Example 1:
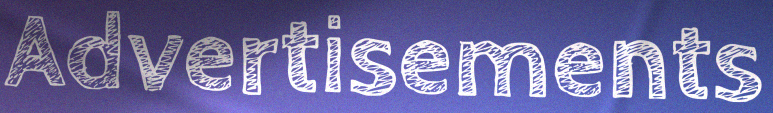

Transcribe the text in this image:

Advertisements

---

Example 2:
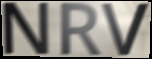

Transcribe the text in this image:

NRV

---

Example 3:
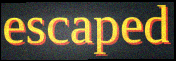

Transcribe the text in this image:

escaped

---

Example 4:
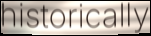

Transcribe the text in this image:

historically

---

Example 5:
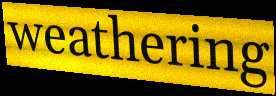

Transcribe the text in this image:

weathering